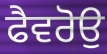
ਫੈਵਰੋਉ